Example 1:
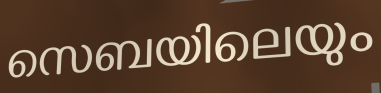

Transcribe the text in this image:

സെബയിലെയും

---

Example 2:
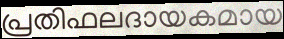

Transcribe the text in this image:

പ്രതിഫലദായകമായ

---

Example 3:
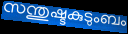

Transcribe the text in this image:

സന്തുഷ്ടകുടുംബം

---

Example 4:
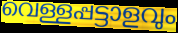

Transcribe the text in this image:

വെള്ളപ്പട്ടാളവും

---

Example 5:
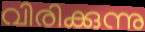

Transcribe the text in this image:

വിരിക്കുന്നു